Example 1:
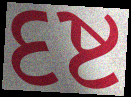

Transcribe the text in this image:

દષ્ટ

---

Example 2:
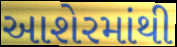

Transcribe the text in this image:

આશેરમાંથી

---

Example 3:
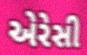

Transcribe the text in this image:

એરેસી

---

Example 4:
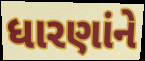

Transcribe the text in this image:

ધારણાંને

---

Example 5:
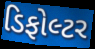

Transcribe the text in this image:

ડિફોલ્ટર